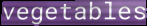
vegetables